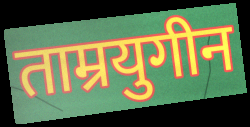
ताम्रयुगीन